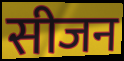
सीजन